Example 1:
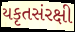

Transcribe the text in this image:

યકૃતસંરક્ષી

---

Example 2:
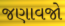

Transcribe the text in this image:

જણાવજો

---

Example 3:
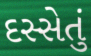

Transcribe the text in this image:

દસ્સેતું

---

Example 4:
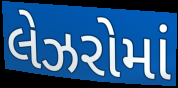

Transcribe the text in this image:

લેઝરોમાં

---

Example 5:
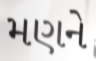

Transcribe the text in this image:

મણને